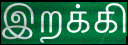
இறக்கி